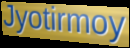
Jyotirmoy